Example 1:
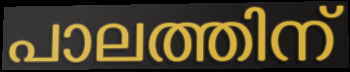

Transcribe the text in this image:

പാലത്തിന്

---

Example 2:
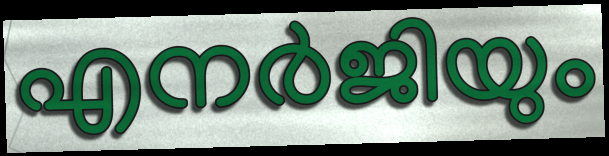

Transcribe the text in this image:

എനർജിയും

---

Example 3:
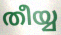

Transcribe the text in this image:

തീയ്യ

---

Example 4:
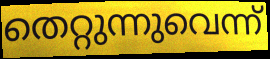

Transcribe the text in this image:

തെറ്റുന്നുവെന്ന്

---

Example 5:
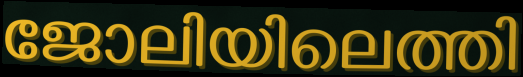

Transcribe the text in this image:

ജോലിയിലെത്തി